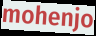
mohenjo